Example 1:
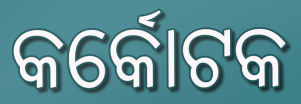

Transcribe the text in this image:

କର୍କୋଟକ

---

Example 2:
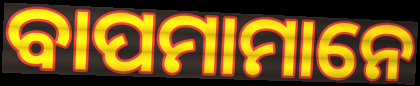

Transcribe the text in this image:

ବାପମାମାନେ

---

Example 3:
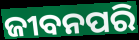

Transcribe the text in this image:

ଜୀବନପରି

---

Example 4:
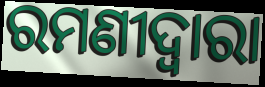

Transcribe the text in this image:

ରମଣୀଦ୍ୱାରା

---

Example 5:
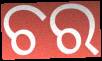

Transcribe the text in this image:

ଚର